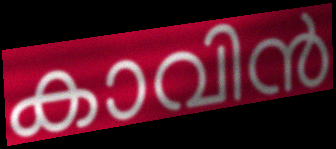
കാവിൻ